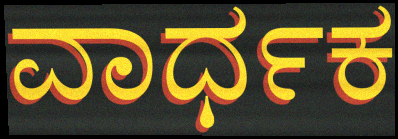
ವಾರ್ಧಕ